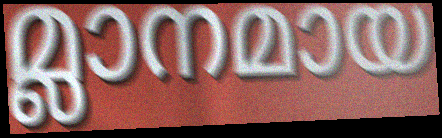
മ്ലാനമായ